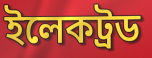
ইলেকট্রড